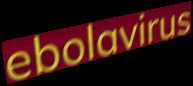
ebolavirus